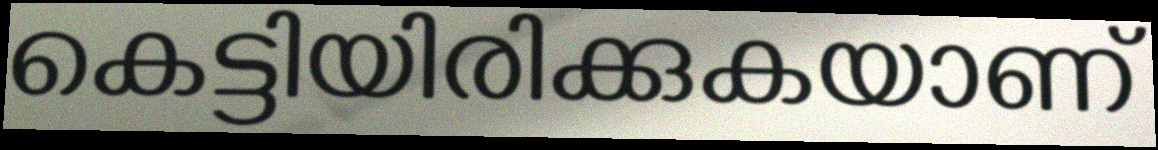
കെട്ടിയിരിക്കുകയാണ്